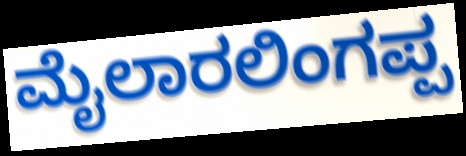
ಮೈಲಾರಲಿಂಗಪ್ಪ